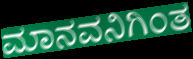
ಮಾನವನಿಗಿಂತ